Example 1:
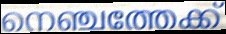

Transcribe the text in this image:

നെഞ്ചത്തേക്ക്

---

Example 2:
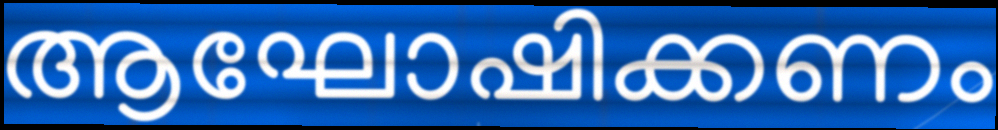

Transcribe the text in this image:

ആഘോഷിക്കണം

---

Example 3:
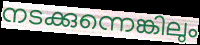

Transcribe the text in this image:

നടക്കുന്നെങ്കിലും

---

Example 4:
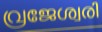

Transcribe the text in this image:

വ്രജേശ്വരി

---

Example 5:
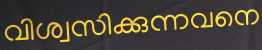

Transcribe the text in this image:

വിശ്വസിക്കുന്നവനെ